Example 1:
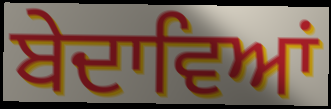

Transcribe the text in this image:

ਬੇਦਾਵਿਆਂ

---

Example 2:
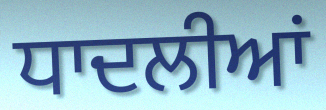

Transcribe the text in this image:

ਧਾਦਲੀਆਂ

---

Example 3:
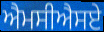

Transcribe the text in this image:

ਐਮਸੀਐਸਏ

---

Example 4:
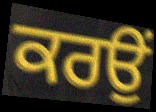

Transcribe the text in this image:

ਕਰਉਂ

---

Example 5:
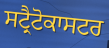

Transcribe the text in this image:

ਸਟ੍ਰੈਟੋਕਾਸਟਰ